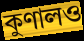
কুণালও